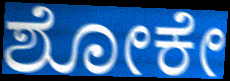
ಶೋಕೇ